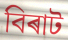
বিৰাট